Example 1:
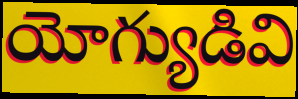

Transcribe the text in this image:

యోగ్యుడివి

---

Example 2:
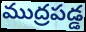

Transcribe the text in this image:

ముద్రపడ్డ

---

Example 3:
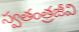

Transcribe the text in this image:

స్వతంత్రజీవి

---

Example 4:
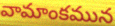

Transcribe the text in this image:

వామాంకమున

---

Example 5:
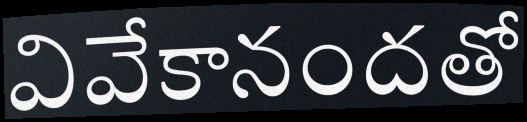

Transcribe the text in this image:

వివేకానందతో